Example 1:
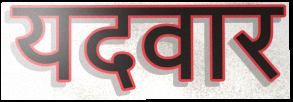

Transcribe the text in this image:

यदवार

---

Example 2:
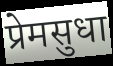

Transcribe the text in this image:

प्रेमसुधा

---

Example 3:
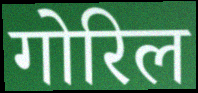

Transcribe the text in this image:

गोरिल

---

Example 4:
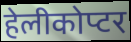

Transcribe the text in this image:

हेलीकोप्टर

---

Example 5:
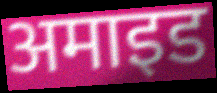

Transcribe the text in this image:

अमाइड